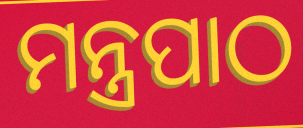
ମନ୍ତ୍ରପାଠ